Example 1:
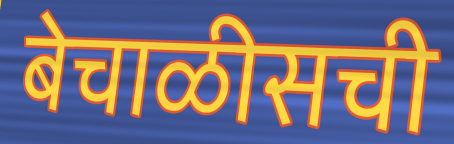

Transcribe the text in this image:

बेचाळीसची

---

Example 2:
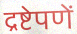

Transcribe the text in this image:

द्रष्टेपणें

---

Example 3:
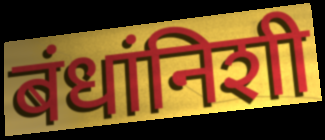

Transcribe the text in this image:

बंधांनिशी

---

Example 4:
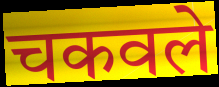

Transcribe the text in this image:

चकवले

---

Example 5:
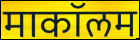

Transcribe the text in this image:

माकॉलम